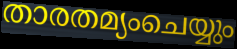
താരതമ്യംചെയ്യും